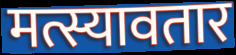
मत्स्यावतार